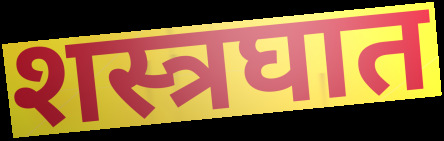
शस्त्रघात